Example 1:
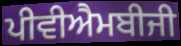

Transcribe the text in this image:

ਪੀਵੀਐਮਬੀਜੀ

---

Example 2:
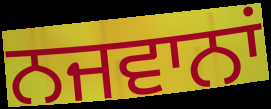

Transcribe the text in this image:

ਨਜਵਾਨਾਂ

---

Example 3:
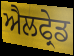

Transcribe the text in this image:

ਐਲਫ੍ਰੇਡ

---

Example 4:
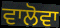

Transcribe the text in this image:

ਵਾਲੋਵਾ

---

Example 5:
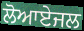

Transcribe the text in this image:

ਲੋਆਏਜਲ